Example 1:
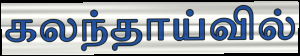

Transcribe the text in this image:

கலந்தாய்வில்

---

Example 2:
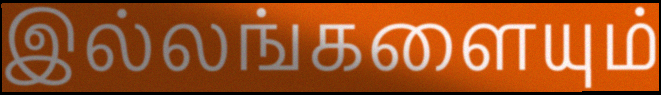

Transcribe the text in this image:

இல்லங்களையும்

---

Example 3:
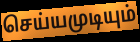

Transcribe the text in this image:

செய்யமுடியும்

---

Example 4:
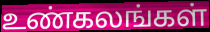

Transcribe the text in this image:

உண்கலங்கள்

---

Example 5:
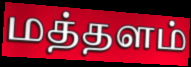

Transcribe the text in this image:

மத்தளம்